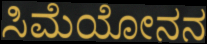
ಸಿಮೆಯೋನನ